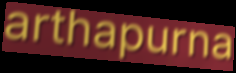
arthapurna